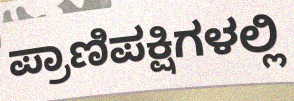
ಪ್ರಾಣಿಪಕ್ಷಿಗಳಲ್ಲಿ